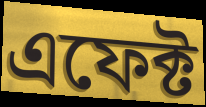
এফেক্ট